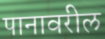
पानावरील